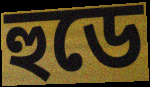
হুডে